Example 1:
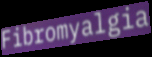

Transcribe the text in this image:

Fibromyalgia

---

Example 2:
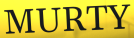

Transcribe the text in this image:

MURTY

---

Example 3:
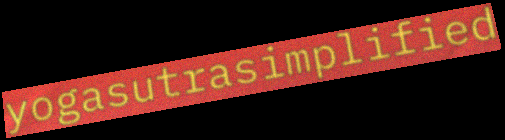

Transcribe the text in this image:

yogasutrasimplified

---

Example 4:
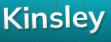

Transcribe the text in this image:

Kinsley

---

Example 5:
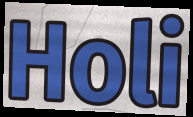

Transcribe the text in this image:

Holi